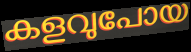
കളവുപോയ